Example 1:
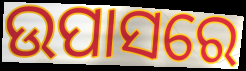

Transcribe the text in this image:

ଉପାସରେ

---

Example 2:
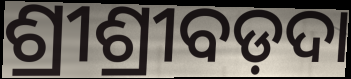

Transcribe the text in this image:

ଶ୍ରୀଶ୍ରୀବଡ଼ଦା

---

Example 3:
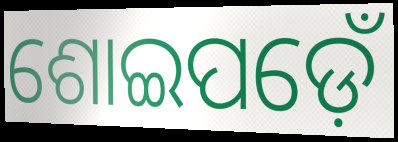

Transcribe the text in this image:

ଶୋଇପଡ଼େଁ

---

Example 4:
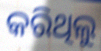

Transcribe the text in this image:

କରିଥିଲୁ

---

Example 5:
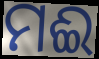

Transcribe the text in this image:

ମଈ